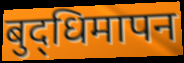
बुद्धिमापन